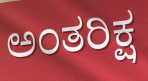
ಅಂತರಿಕ್ಷ